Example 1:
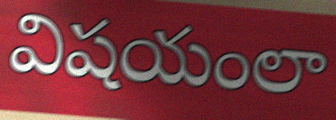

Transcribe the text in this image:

విషయంలా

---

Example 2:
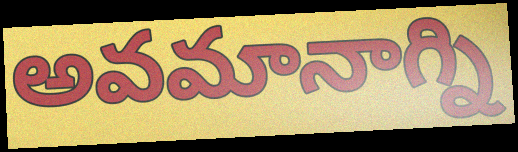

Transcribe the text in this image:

అవమానాగ్ని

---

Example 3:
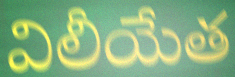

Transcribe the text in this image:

విలీయేత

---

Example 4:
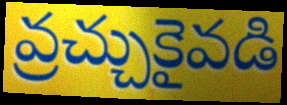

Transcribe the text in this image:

వ్రచ్చుకైవడి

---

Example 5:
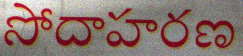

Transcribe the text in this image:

సోదాహరణ